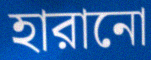
হারানো